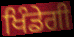
ਖਿੰਡੇਗੀ